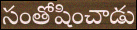
సంతోషించాడు